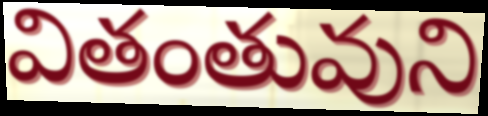
వితంతువుని